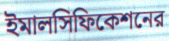
ইমালসিফিকেশনের